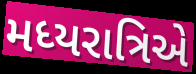
મધ્યરાત્રિએ